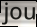
jou